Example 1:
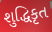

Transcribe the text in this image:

શુદ્ધિકૃત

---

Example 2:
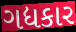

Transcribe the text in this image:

ગદ્યકાર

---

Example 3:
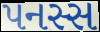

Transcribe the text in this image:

પનસ્સ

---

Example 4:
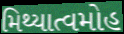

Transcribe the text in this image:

મિથ્યાત્વમોહ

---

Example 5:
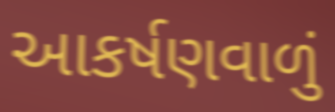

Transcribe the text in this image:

આકર્ષણવાળું